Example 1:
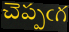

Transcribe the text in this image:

చెప్పఁగ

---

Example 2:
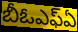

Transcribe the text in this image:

బీఓఎఫ్ఏ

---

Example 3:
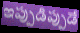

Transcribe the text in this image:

ఇప్పుడిప్పుడే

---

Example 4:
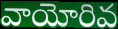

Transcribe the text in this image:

వాయోరివ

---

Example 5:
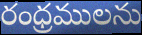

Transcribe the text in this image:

రంధ్రములను